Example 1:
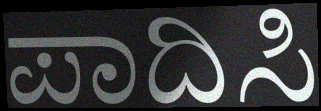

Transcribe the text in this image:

ಪಾದಿಸಿ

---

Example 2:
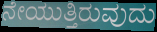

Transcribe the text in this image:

ನೇಯುತ್ತಿರುವುದು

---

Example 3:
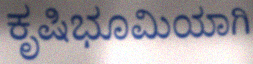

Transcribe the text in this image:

ಕೃಷಿಭೂಮಿಯಾಗಿ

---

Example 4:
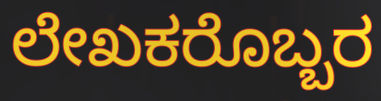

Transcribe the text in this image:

ಲೇಖಕರೊಬ್ಬರ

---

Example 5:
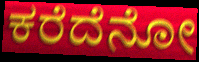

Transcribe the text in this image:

ಕರೆದೆನೋ